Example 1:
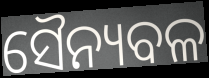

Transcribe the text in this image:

ସୈନ୍ୟବଳ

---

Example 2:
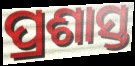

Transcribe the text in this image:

ପ୍ରଶାସ୍ତ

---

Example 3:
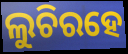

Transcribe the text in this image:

ଲୁଚିରହେ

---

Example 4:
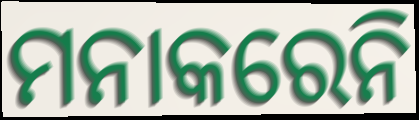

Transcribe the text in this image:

ମନାକରେନି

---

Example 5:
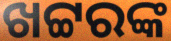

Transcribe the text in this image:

ଖଟ୍ଟରଙ୍କ